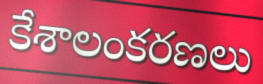
కేశాలంకరణలు